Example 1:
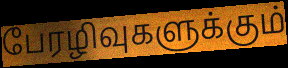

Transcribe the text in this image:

பேரழிவுகளுக்கும்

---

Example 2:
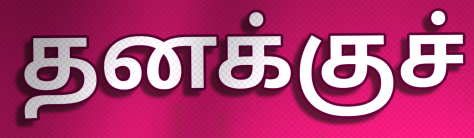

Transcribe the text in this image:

தனக்குச்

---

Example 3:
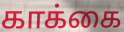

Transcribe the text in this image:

காக்கை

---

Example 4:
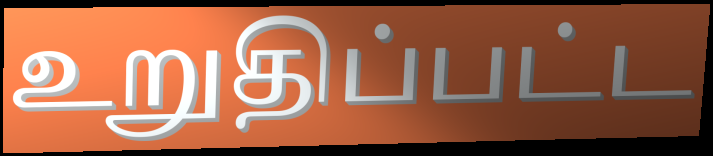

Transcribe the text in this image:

உறுதிப்பட்ட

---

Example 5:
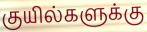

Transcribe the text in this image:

குயில்களுக்கு